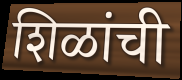
शिळांची